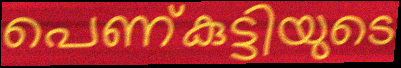
പെണ്കുട്ടിയുടെ